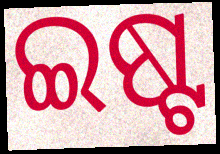
ଇଷ୍ଟ